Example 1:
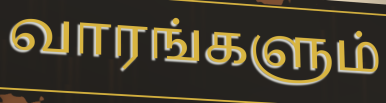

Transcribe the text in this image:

வாரங்களும்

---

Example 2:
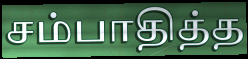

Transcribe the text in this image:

சம்பாதித்த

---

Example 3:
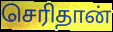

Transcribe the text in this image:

செரிதான்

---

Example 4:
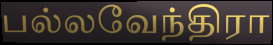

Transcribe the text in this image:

பல்லவேந்திரா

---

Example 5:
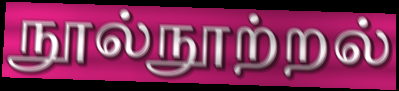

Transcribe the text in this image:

நூல்நூற்றல்